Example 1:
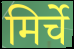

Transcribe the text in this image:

मिर्चे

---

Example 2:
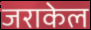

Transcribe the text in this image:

जराकेल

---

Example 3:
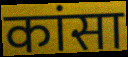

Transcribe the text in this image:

कांसा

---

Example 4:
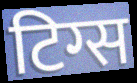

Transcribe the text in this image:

टिग्स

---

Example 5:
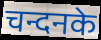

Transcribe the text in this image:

चन्दनके